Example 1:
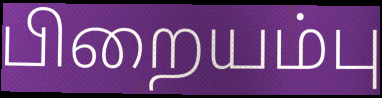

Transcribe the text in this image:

பிறையம்பு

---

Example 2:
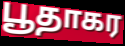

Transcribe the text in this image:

பூதாகர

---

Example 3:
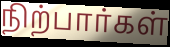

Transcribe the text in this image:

நிற்பார்கள்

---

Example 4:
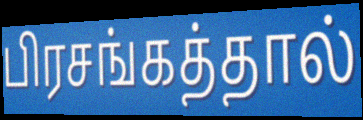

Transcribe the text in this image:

பிரசங்கத்தால்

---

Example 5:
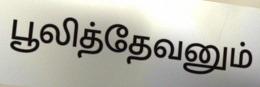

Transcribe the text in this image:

பூலித்தேவனும்